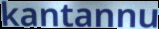
kantannu